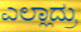
ಎಲ್ಲಾದ್ರು